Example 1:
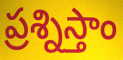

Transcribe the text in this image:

ప్రశ్నిస్తాం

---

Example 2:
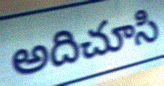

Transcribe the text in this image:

అదిచూసి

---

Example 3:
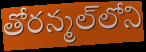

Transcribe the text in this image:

తోరన్మల్‌లోని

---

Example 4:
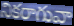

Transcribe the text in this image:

నికరాగువా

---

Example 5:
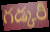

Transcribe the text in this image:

గడ్కరీ